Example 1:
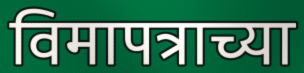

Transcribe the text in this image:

विमापत्राच्या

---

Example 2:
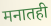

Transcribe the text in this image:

मनातही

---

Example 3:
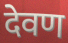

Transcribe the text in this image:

देवण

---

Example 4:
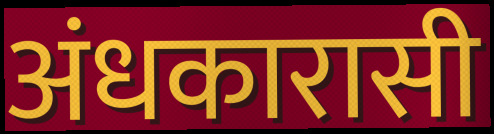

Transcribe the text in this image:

अंधकारासी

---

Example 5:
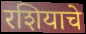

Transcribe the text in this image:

रशियाचे